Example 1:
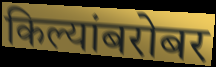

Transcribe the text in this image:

किल्यांबरोबर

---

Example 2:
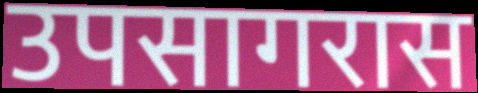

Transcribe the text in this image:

उपसागरास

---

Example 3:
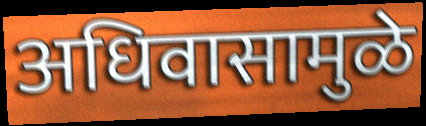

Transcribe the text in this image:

अधिवासामुळे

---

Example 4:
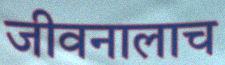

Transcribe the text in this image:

जीवनालाच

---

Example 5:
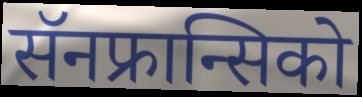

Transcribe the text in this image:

सॅनफ्रान्सिको